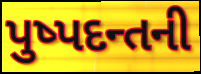
પુષ્પદન્તની